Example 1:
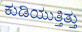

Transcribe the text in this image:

ಕುಡಿಯುತ್ತಿತ್ತು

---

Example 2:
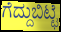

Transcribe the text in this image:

ಗೆದ್ದುಬಿಟ್ಟೆ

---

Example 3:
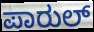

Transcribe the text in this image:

ಪಾರುಲ್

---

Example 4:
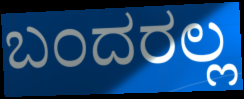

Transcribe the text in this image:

ಬಂದರಲ್ಲ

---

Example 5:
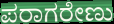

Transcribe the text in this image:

ಪರಾಗರೇಣು